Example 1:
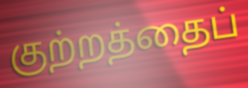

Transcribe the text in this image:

குற்றத்தைப்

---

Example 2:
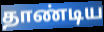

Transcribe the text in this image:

தாண்டிய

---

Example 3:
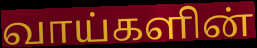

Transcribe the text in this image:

வாய்களின்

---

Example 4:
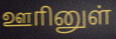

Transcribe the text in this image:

ஊரினுள்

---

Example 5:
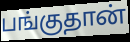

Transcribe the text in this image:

பங்குதான்